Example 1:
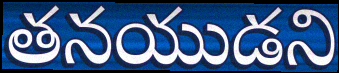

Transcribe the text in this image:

తనయుడని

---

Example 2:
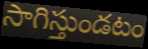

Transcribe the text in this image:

సాగిస్తుండటం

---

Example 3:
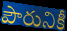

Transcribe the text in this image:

పౌరునికీ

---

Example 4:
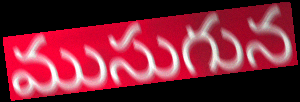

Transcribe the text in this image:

ముసుగున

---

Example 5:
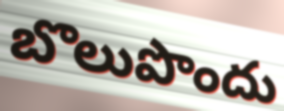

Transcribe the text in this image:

బొలుపొందు